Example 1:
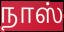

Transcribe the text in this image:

நாஸ்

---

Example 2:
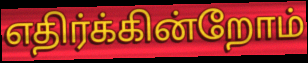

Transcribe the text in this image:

எதிர்க்கின்றோம்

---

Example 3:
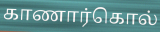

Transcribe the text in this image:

காணார்கொல்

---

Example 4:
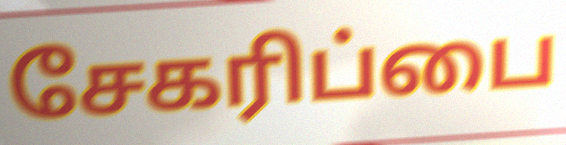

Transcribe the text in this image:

சேகரிப்பை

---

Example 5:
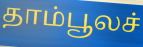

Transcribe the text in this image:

தாம்பூலச்